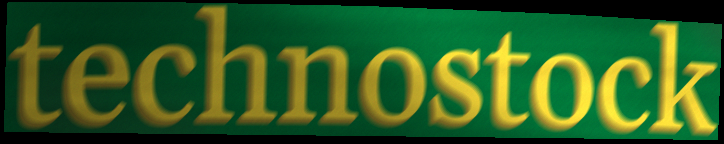
technostock